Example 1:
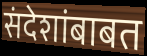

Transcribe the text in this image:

संदेशांबाबत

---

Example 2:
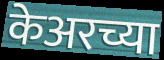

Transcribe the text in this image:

केअरच्या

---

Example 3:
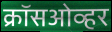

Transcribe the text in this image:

क्रॉसओव्हर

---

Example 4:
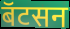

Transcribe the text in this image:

बॅटसन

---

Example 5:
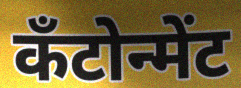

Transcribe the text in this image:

कँटोन्मेंट